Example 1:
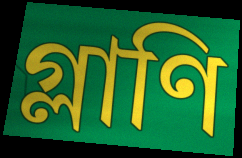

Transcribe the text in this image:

গ্লাণি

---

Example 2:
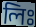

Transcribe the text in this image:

লিঃ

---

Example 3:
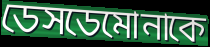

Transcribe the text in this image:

ডেসডেমোনাকে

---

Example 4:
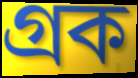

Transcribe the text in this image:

গ্রক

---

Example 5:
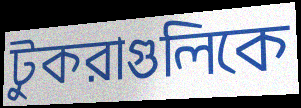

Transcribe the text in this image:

টুকরাগুলিকে